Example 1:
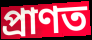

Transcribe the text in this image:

প্ৰাণত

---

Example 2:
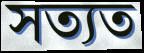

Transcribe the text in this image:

সত্যত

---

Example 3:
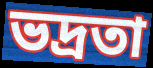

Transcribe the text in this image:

ভদ্ৰতা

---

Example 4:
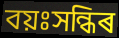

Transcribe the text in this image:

বয়ঃসন্ধিৰ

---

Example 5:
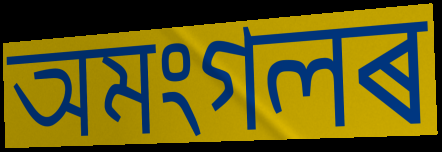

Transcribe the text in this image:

অমংগলৰ